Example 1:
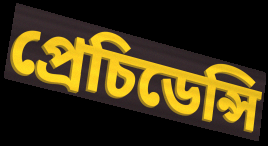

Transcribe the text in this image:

প্ৰেচিডেন্সি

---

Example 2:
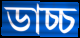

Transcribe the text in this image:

ডাচ্চ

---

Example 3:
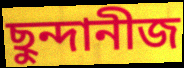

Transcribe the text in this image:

ছুন্দানীজ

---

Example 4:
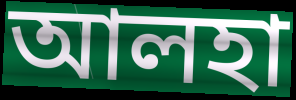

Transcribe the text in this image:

আলহা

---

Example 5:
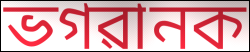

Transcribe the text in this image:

ভগৱানক